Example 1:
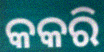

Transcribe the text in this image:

କକରି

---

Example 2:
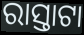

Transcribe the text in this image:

ରାସ୍ତାଟା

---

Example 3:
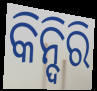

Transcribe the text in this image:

କିନ୍ଦିରି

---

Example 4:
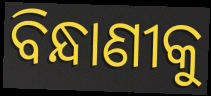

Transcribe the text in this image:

ବିନ୍ଧାଣୀକୁ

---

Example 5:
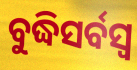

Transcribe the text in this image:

ବୁଦ୍ଧିସର୍ବସ୍ୱ